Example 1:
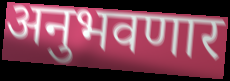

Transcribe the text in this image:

अनुभवणार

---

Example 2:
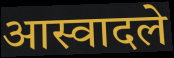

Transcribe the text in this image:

आस्वादले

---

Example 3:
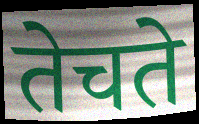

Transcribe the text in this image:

तेचते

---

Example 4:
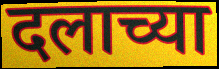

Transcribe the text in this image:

दलाच्या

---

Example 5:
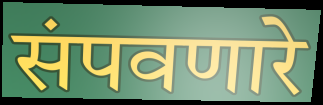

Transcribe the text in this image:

संपवणारे